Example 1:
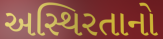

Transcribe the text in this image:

અસ્થિરતાનો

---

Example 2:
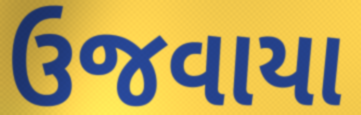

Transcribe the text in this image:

ઉજવાયા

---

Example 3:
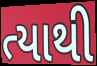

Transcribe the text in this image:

ત્યાથી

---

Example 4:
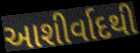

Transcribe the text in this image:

આશીર્વાદથી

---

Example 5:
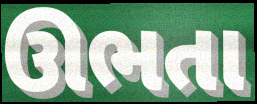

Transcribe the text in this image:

ઊભતા